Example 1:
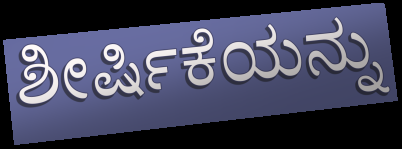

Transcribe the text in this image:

ಶೀರ್ಷಿಕೆಯನ್ನು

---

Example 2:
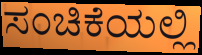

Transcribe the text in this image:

ಸಂಚಿಕೆಯಲ್ಲಿ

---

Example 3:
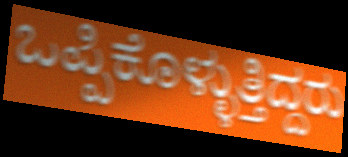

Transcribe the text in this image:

ಒಪ್ಪಿಕೊಳ್ಳುತ್ತಿದ್ದರು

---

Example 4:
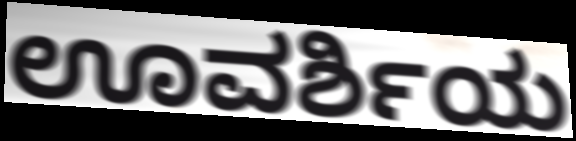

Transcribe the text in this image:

ಊವರ್ಶಿಯ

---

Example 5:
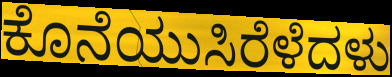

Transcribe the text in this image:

ಕೊನೆಯುಸಿರೆಳೆದಳು